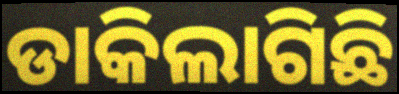
ଡାକିଲାଗିଛି